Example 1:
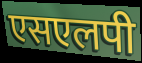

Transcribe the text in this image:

एसएलपी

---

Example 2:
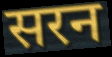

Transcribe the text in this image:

सरन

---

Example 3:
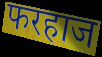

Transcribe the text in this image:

फरहाज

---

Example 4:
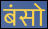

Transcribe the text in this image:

बंसो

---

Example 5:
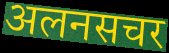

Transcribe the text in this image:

अलनसचर